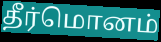
தீர்மொனம்